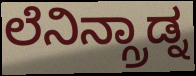
ಲೆನಿನ್ಗ್ರಾಡ್ನ